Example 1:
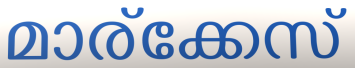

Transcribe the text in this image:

മാര്ക്കേസ്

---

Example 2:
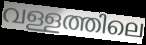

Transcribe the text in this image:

വള്ളത്തിലെ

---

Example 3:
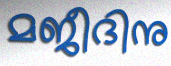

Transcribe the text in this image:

മജീദിനു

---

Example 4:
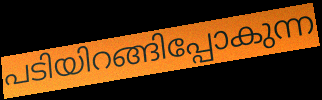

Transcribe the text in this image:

പടിയിറങ്ങിപ്പോകുന്ന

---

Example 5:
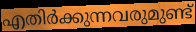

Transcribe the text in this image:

എതിർക്കുന്നവരുമുണ്ട്